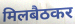
मिलबैठकर